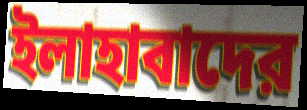
ইলাহাবাদের